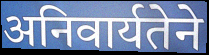
अनिवार्यतेने